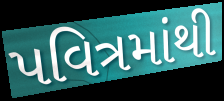
પવિત્રમાંથી